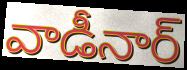
వాడీనార్